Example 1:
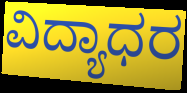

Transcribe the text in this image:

ವಿದ್ಯಾಧರ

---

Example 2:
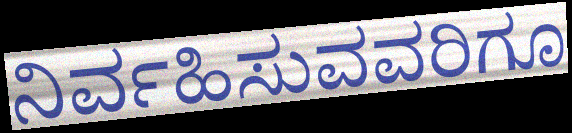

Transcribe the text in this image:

ನಿರ್ವಹಿಸುವವರಿಗೂ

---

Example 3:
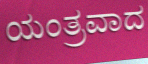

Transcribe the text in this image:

ಯಂತ್ರವಾದ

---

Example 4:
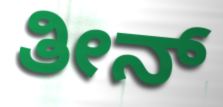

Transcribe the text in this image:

ತೀನ್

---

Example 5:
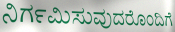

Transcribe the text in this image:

ನಿರ್ಗಮಿಸುವುದರೊಂದಿಗೆ